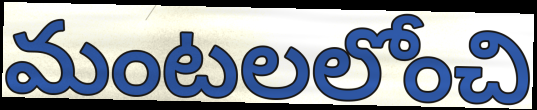
మంటలలోంచి